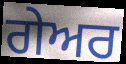
ਗੇਅਰ